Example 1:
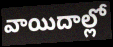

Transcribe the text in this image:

వాయిదాల్లో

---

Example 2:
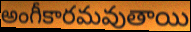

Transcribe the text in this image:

అంగీకారమవుతాయి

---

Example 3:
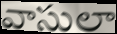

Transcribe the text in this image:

వాసులా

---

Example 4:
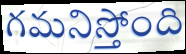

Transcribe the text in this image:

గమనిస్తోంది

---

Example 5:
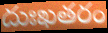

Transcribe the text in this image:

దుఃఖతరం